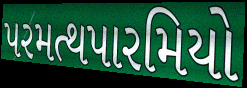
પરમત્થપારમિયો